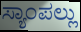
ಸ್ಯಾಂಪಲ್ಲು